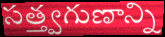
సత్త్వగుణాన్ని